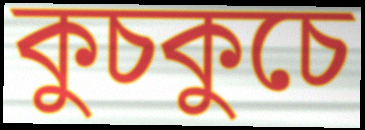
কুচকুচে